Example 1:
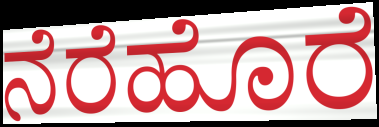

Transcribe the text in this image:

ನೆರೆಹೊರೆ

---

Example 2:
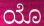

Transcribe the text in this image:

ಯೊ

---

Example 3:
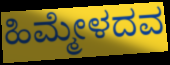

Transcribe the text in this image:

ಹಿಮ್ಮೇಳದವ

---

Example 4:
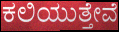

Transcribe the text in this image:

ಕಲಿಯುತ್ತೇವೆ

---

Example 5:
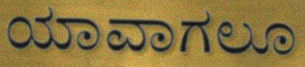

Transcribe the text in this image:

ಯಾವಾಗಲೂ